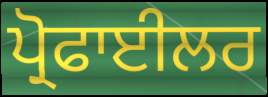
ਪ੍ਰੋਫਾਈਲਰ